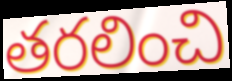
తరలించి